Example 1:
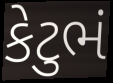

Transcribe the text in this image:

કેટુભં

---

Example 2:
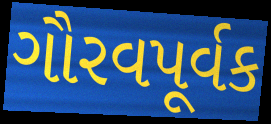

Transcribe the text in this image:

ગૌરવપૂર્વક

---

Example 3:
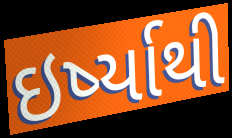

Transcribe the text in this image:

ઇર્ષ્યાથી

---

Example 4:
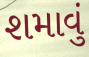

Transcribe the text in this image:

શમાવું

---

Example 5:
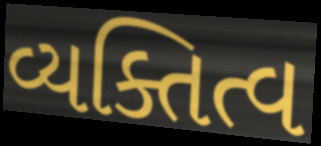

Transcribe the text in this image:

વ્યક્તિત્વ